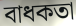
বাধকতা